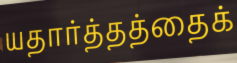
யதார்த்தத்தைக்